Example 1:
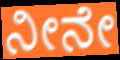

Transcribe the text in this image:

ನೀನೇ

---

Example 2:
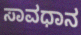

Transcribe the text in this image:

ಸಾವಧಾನ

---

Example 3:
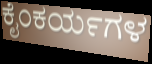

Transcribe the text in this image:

ಕೈಂಕರ್ಯಗಳ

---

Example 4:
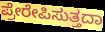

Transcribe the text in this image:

ಪ್ರೇರೇಪಿಸುತ್ತದಾ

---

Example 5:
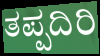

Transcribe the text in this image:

ತಪ್ಪದಿರಿ